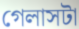
গেলাসটা